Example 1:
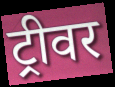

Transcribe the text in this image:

ट्रीवर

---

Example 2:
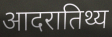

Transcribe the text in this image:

आदरातिथ्य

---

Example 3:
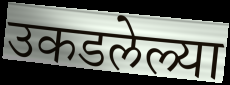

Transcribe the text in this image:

उकडलेल्या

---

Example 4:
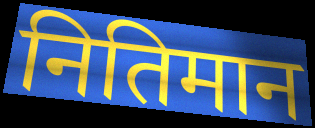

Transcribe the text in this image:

नितिमान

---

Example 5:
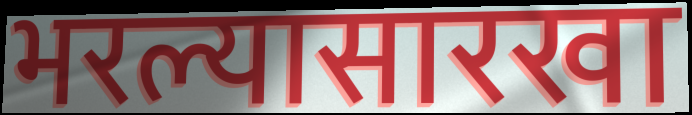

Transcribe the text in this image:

भरल्यासारखा